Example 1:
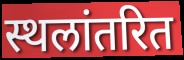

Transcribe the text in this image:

स्थलांतरित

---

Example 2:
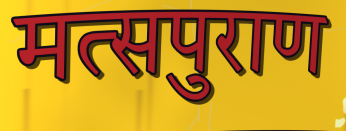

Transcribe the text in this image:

मत्सपुराण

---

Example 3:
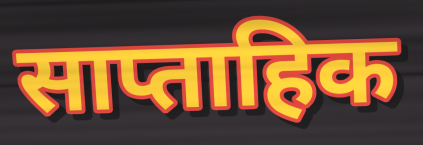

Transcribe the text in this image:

साप्ताहिक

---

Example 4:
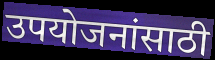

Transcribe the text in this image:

उपयोजनांसाठी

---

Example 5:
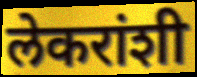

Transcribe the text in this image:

लेकरांशी